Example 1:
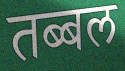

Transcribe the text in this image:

तब्बल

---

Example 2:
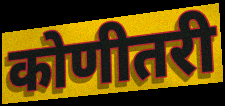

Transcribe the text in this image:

कोणीतरी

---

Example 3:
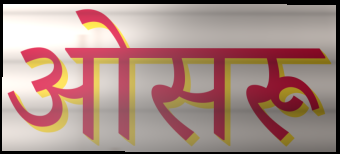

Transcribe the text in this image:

ओसरू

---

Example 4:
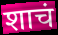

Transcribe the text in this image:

शाचं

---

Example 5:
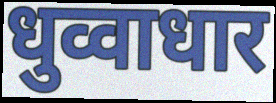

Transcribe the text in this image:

धुव्वाधार